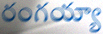
రంగయ్యా